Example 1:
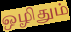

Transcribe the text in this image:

ஒழிதும்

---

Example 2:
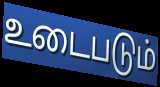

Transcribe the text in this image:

உடைபடும்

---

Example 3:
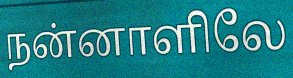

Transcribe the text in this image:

நன்னாளிலே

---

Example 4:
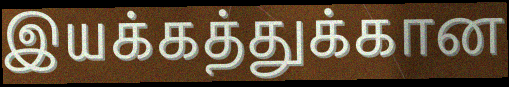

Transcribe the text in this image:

இயக்கத்துக்கான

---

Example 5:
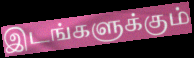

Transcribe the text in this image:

இடங்களுக்கும்